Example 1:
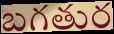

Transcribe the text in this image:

బగతుర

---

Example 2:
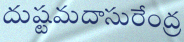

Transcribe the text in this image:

దుష్టమదాసురేంద్ర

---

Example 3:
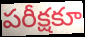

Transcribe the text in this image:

పరీక్షకూ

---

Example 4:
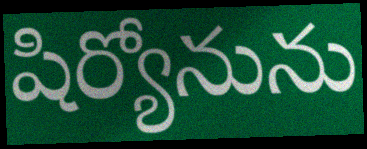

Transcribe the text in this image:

షిర్యోనును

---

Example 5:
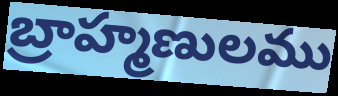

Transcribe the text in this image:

బ్రాహ్మణులము